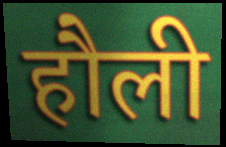
हौली